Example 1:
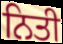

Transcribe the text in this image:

ਨਿਤੀ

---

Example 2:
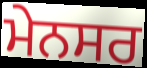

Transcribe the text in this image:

ਮੇਨਸਰ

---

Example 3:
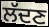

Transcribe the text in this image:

ਲੱਦਣ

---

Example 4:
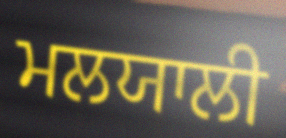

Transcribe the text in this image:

ਮਲਯਾਲੀ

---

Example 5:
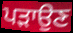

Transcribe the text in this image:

ਪੜਾਉਣ